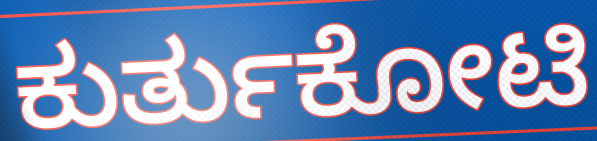
ಕುರ್ತುಕೋಟಿ